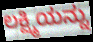
ಲಕ್ಷ್ಮಿಯನ್ನು